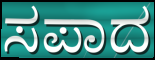
ಸಪಾದ